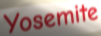
Yosemite